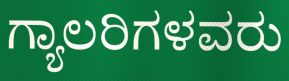
ಗ್ಯಾಲರಿಗಳವರು